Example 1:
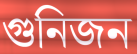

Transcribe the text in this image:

গুনিজন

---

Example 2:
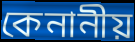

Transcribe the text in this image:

কেনানীয়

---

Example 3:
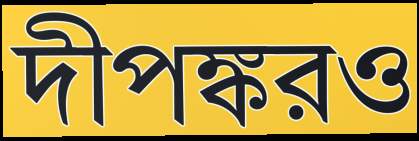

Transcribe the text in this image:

দীপঙ্করও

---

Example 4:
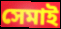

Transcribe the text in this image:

সেমাই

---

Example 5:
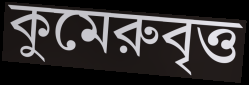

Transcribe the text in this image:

কুমেরুবৃত্ত